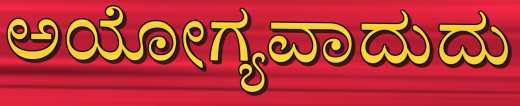
ಅಯೋಗ್ಯವಾದುದು